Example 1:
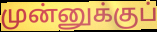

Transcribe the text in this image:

முன்னுக்குப்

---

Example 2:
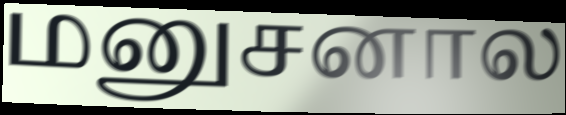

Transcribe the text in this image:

மனுசனால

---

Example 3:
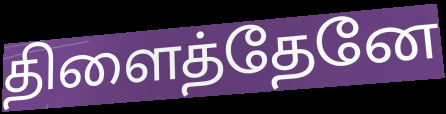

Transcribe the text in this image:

திளைத்தேனே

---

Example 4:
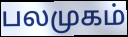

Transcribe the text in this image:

பலமுகம்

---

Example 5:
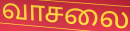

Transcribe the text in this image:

வாசலை